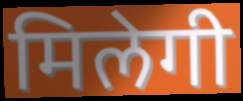
मिलेगी